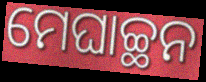
ମେଘାଚ୍ଛନ